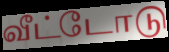
வீட்டோடு